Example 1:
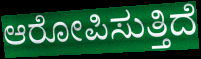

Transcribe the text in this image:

ಆರೋಪಿಸುತ್ತಿದೆ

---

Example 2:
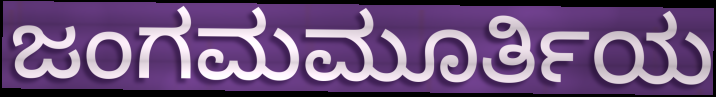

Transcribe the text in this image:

ಜಂಗಮಮೂರ್ತಿಯ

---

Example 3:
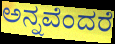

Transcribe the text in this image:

ಅನ್ನವೆಂದರೆ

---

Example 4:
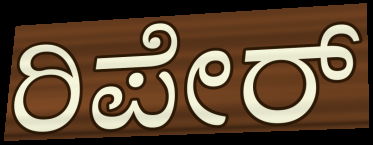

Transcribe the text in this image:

ರಿಪೇರ್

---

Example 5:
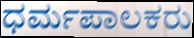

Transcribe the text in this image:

ಧರ್ಮಪಾಲಕರು